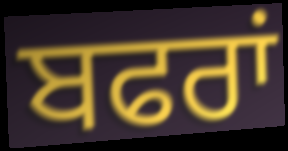
ਬਫਰਾਂ